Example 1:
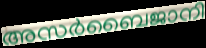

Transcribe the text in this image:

അസർബൈജാനി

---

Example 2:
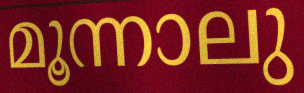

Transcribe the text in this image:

മൂന്നാലു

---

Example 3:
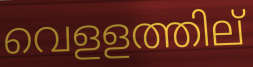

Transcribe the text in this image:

വെളളത്തില്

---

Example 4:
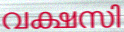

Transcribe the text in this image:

വക്ഷസി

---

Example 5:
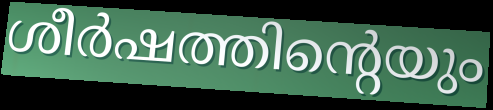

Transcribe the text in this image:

ശീർഷത്തിന്റെയും